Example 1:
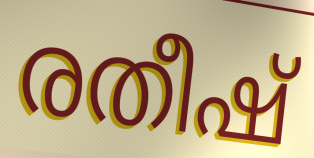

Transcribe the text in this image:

രതീഷ്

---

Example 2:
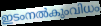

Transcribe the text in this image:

ഇടംനൽകുംവിധം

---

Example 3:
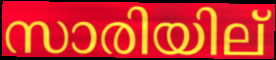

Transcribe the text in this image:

സാരിയില്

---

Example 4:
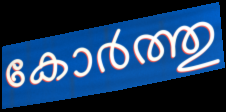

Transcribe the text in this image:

കോർത്തു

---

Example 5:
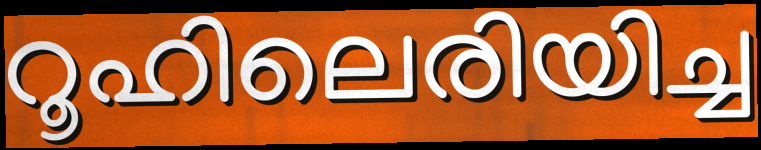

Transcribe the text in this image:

റൂഹിലെരിയിച്ച